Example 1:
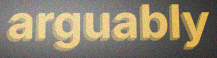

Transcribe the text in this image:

arguably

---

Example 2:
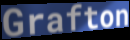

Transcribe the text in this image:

Grafton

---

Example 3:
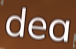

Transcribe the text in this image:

dea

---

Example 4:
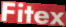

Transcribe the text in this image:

Fitex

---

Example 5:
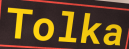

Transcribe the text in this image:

Tolka